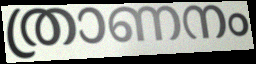
ത്രാണനം